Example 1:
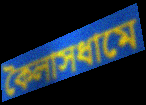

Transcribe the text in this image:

কৈলাসধামে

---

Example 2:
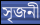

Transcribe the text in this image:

সৃজনী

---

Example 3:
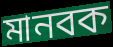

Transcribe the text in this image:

মানবক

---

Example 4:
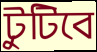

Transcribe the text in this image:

টুটিবে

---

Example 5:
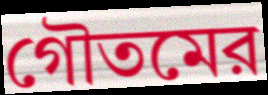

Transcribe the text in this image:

গৌতমের